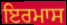
ਇਰਮਾਸ